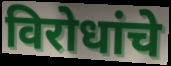
विरोधांचे